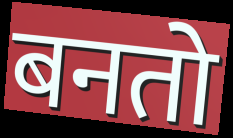
बनतो